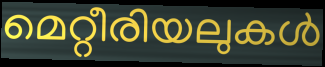
മെറ്റീരിയലുകൾ